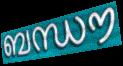
ബന്ധൗ